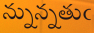
న్నున్నతుఁ